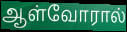
ஆள்வோரால்